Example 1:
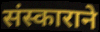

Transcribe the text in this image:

संस्काराने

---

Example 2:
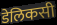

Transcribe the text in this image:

डेलिकसी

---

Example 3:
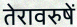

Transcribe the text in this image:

तेरावरुषें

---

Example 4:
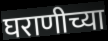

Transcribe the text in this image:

घराणीच्या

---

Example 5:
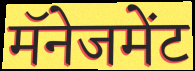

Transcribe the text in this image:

मॅनेजमेंट